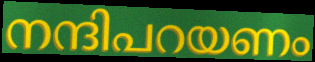
നന്ദിപറയണം